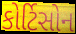
કોર્ટિસોન